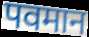
पवमान